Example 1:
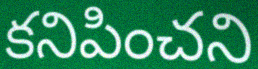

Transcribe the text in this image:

కనిపించని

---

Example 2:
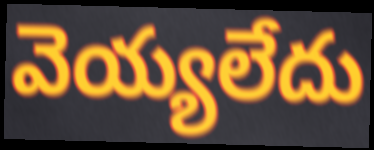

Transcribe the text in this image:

వెయ్యలేదు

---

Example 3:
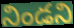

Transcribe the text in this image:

నిండని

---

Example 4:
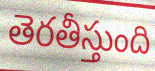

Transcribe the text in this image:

తెరతీస్తుంది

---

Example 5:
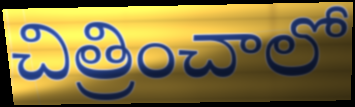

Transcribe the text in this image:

చిత్రించాలో